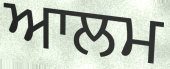
ਆਲਮ